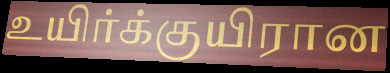
உயிர்க்குயிரான